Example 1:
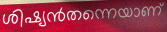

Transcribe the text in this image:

ശിഷ്യൻതന്നെയാണ്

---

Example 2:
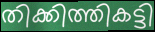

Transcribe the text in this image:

തിക്കിത്തികട്ടി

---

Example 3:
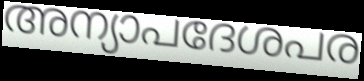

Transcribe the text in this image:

അന്യാപദേശപര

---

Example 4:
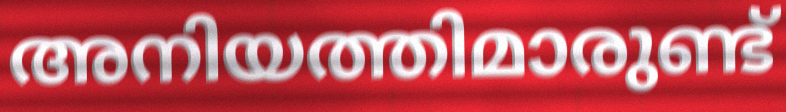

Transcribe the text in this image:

അനിയത്തിമാരുണ്ട്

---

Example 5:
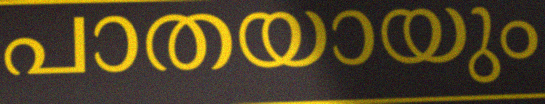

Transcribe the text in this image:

പാതയായും